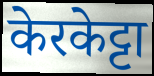
केरकेट्टा